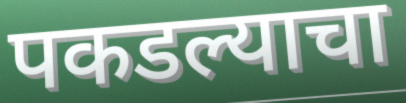
पकडल्याचा